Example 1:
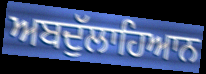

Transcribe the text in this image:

ਅਬਦੁੱਲਾਹਿਆਨ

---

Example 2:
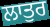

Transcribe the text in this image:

ਲਾਤੁਰ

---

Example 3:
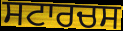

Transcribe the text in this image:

ਸਟਾਰਚਸ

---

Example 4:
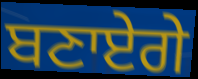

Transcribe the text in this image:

ਬਣਾਏਗੇ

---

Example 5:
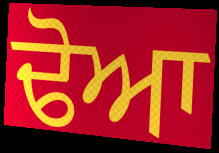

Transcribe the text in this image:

ਢੋਆ